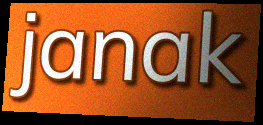
janak